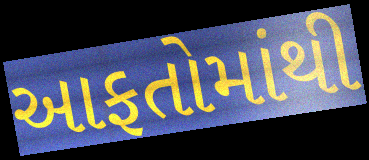
આફતોમાંથી